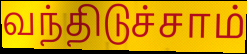
வந்திடுச்சாம்